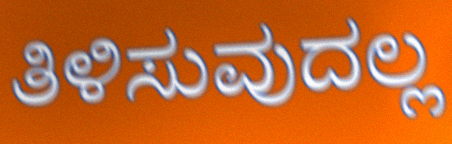
ತಿಳಿಸುವುದಲ್ಲ